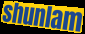
shunlam